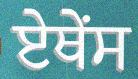
ਏਥੇਂਸ